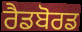
ਰੈਡਬੋਰਡ